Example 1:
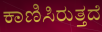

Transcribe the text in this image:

ಕಾಣಿಸಿರುತ್ತದೆ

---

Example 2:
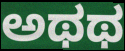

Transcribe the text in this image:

ಅಥಥ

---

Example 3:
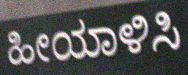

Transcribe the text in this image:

ಹೀಯಾಳಿಸಿ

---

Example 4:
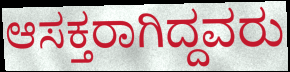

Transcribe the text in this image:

ಆಸಕ್ತರಾಗಿದ್ದವರು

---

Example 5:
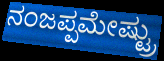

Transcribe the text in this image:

ನಂಜಪ್ಪಮೇಷ್ಟ್ರು